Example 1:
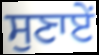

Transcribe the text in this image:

ਸੁਣਾਏਂ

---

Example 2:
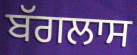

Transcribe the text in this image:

ਬੱਗਲਾਸ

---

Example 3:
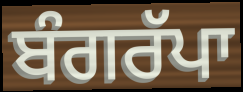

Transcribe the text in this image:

ਬੰਗਰੱਪਾ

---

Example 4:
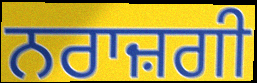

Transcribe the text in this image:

ਨਰਾਜ਼ਗੀ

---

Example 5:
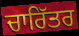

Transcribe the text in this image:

ਚਾਰਿੱਤਰ